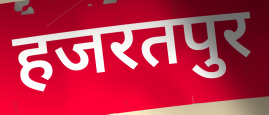
हजरतपुर